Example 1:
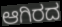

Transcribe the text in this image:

ಆಗಿರದ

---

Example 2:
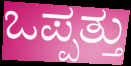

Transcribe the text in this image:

ಒಪ್ಪತ್ತು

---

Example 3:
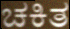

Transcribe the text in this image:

ಚಕಿತ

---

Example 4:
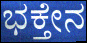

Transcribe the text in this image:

ಭಕ್ತೇನ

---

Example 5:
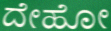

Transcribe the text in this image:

ದೇಹೋ